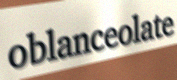
oblanceolate